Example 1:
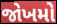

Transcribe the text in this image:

જોખમો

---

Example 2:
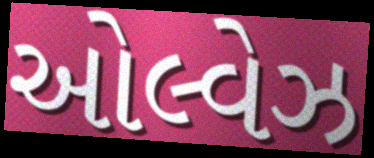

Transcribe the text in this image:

ઓલ્વેઝ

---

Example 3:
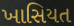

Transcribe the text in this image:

ખાસિયત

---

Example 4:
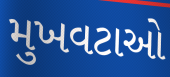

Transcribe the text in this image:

મુખવટાઓ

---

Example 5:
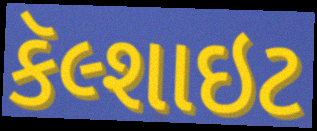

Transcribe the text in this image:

કૅલ્શાઇટ